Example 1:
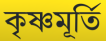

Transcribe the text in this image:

কৃষ্ণমূর্তি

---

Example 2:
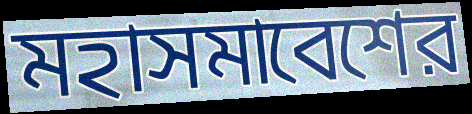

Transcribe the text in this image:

মহাসমাবেশের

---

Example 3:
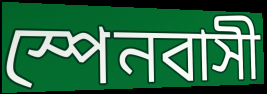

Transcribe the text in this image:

স্পেনবাসী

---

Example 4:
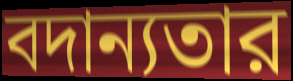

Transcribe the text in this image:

বদান্যতার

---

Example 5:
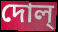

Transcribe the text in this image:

দোল্